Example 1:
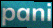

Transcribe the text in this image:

pani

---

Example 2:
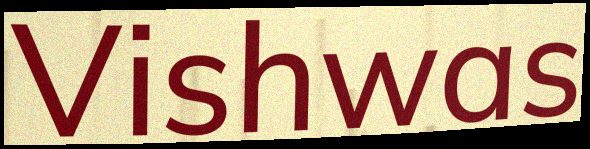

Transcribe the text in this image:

Vishwas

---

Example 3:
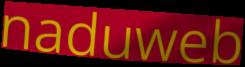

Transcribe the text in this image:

naduweb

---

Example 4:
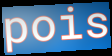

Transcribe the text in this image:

pois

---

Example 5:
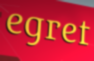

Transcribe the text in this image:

egret